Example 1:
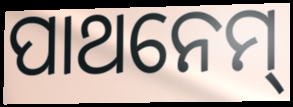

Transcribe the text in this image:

ପାଥନେମ୍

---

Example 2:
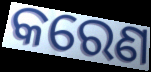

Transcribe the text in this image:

କରେଣ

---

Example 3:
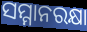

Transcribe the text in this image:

ସମ୍ମାନରକ୍ଷା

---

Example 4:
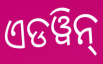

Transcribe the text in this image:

ଏଡୱିନ୍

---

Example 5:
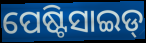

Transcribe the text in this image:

ପେଷ୍ଟିସାଇଡ୍